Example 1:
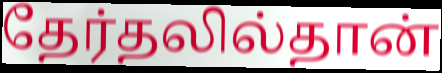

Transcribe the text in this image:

தேர்தலில்தான்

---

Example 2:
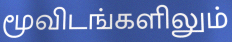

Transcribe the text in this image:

மூவிடங்களிலும்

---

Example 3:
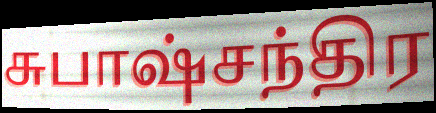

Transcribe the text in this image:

சுபாஷ்சந்திர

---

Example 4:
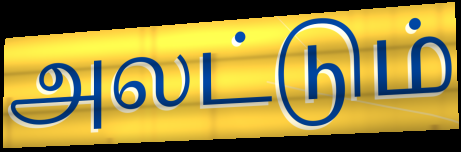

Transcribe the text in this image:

அலட்டும்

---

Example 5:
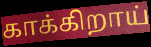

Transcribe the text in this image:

காக்கிறாய்